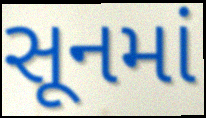
સૂનમાં